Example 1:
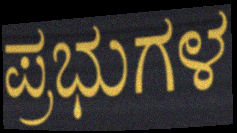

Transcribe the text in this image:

ಪ್ರಭುಗಳ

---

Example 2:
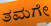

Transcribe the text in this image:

ತಮಗೇ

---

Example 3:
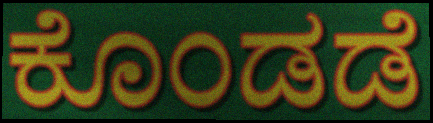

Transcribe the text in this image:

ಕೊಂಡಡೆ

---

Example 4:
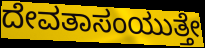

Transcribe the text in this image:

ದೇವತಾಸಂಯುತ್ತೇ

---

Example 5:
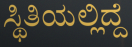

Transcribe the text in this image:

ಸ್ಥಿತಿಯಲ್ಲಿದ್ದೆ